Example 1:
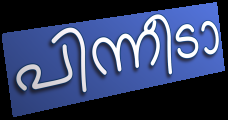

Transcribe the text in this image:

പിന്നീടാ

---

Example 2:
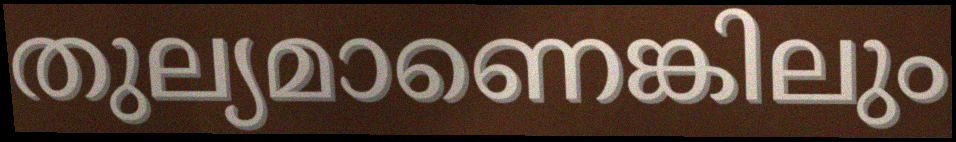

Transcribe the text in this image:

തുല്യമാണെങ്കിലും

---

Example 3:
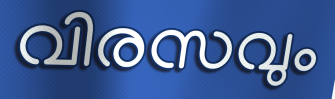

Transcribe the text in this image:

വിരസവും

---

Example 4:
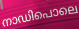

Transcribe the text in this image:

നാഡിപൊലെ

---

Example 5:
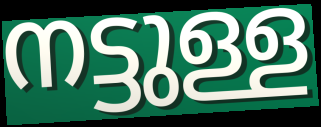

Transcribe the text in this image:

നട്ടുള്ള